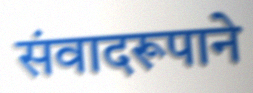
संवादरूपाने